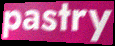
pastry